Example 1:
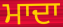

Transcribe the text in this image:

ਮਾਦਾ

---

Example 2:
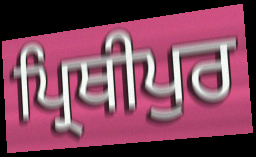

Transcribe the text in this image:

ਪ੍ਰਿਥੀਪੁਰ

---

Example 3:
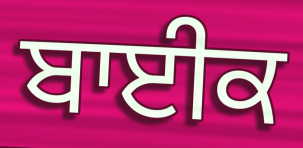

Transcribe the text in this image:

ਬਾਈਕ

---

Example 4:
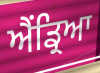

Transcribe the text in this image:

ਐਂਡ੍ਰਿਆ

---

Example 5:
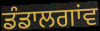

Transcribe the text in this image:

ਡੰਡਾਲਗਾਂਵ